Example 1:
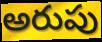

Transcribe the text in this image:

అరుపు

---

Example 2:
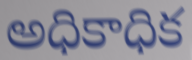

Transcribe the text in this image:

అధికాధిక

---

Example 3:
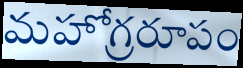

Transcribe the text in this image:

మహోగ్రరూపం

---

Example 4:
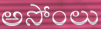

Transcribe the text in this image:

అసోంలు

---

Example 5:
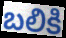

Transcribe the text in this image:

బలికి